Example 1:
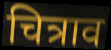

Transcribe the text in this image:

चित्राव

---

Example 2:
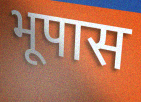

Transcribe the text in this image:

भूपास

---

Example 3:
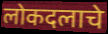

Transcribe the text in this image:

लोकदलाचे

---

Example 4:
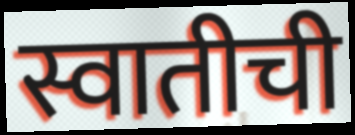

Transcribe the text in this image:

स्वातीची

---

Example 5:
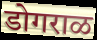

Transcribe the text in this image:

डोगराळ